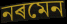
নৰমেন